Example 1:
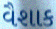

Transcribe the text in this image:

વૈશાક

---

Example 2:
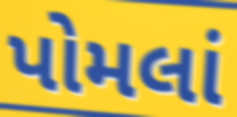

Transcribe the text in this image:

પોમલાં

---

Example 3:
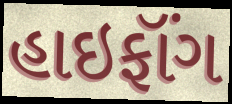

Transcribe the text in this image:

હાઇફૉંગ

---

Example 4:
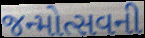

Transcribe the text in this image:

જન્મોત્સવની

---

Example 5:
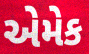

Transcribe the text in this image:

એમેક